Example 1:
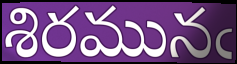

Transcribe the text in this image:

శిరమునఁ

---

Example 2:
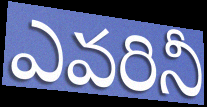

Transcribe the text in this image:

ఎవరినీ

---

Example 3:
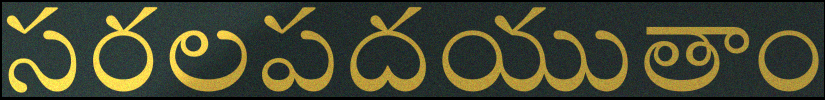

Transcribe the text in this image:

సరలపదయుతాం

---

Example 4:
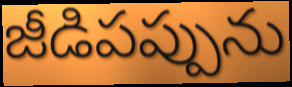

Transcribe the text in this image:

జీడిపప్పును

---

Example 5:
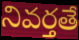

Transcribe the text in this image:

నివర్తతే